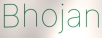
Bhojan